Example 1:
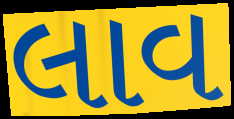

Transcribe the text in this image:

લાવ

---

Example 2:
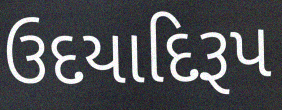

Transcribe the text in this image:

ઉદયાદિરૂપ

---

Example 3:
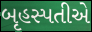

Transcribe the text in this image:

બૃહસ્પતીએ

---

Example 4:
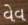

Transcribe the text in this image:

વેવ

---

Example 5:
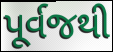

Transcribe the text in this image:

પૂર્વજથી